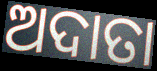
ଅଦାତା